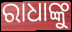
ରାଧାଙ୍କୁ